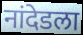
नांदेडला